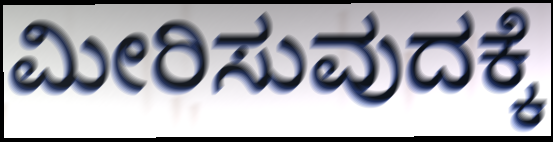
ಮೀರಿಸುವುದಕ್ಕೆ